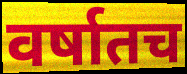
वर्षातच